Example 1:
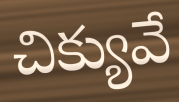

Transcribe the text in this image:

చిక్యువే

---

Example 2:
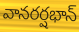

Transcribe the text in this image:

వానరర్షభాన్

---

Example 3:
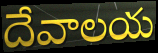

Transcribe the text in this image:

దేవాలయ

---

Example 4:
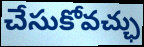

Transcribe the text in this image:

చేసుకోవచ్ఛు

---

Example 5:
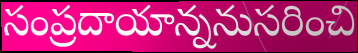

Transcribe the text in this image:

సంప్రదాయాన్ననుసరించి